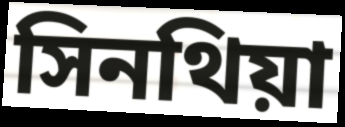
সিনথিয়া